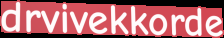
drvivekkorde